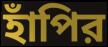
হাঁপির